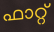
ഫാറ്റ്